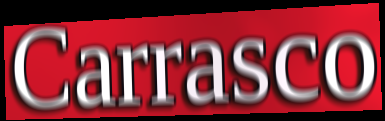
Carrasco